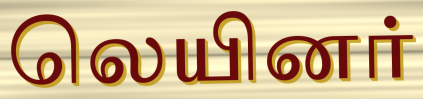
லெயினர்